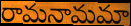
రామనామమా